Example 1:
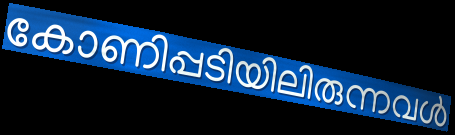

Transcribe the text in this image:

കോണിപ്പടിയിലിരുന്നവൾ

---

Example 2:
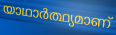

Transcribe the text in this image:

യാഥാർത്ഥ്യമാണ്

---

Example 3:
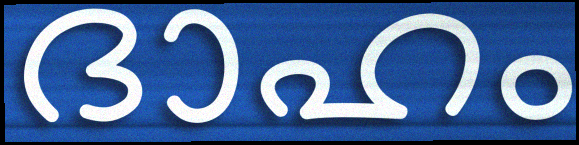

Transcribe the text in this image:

ദാഹം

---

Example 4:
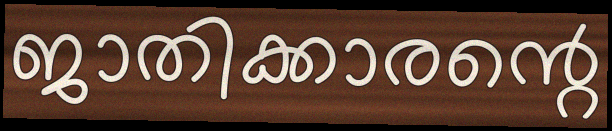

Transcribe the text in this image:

ജാതിക്കാരന്റെ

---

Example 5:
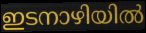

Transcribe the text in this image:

ഇടനാഴിയിൽ